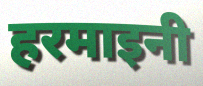
हरमाइनी